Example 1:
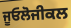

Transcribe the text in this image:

ਜੂਓਲੋਜੀਕਲ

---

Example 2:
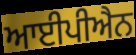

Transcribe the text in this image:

ਆਈਪੀਐਨ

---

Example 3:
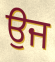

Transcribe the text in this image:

ਉਜ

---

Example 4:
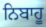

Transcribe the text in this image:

ਨਿਬਾਹੂ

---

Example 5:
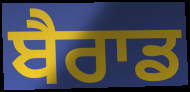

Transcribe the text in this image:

ਬੈਰਾਡ